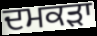
ਦਮਕੜਾ